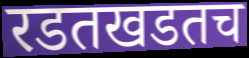
रडतखडतच